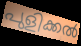
പുളിക്കൽ